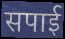
सपाई